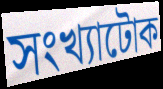
সংখ্যাটোক